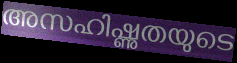
അസഹിഷ്ണുതയുടെ